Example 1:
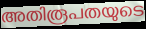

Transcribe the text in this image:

അതിരൂപതയുടെ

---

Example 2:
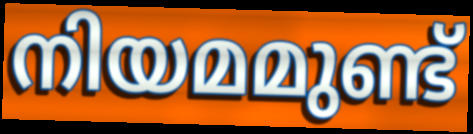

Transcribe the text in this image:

നിയമമുണ്ട്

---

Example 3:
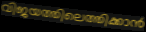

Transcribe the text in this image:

വിജയത്തിലെത്തിക്കാൻ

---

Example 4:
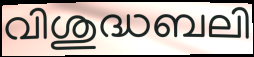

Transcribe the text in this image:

വിശുദ്ധബലി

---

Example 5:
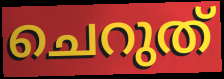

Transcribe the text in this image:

ചെറുത്